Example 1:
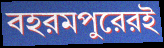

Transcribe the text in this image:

বহরমপুরেরই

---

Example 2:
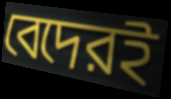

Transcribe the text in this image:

বেদেরই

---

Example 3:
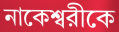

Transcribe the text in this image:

নাকেশ্বরীকে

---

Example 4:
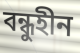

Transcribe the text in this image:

বন্ধুহীন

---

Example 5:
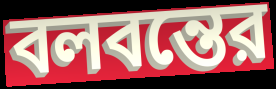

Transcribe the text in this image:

বলবন্তের